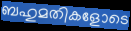
ബഹുമതികളോടെ